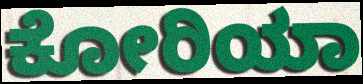
ಕೋರಿಯಾ